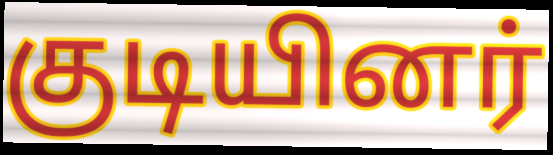
குடியினர்